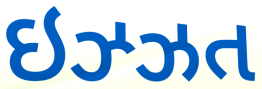
ઇઝ્ઝત